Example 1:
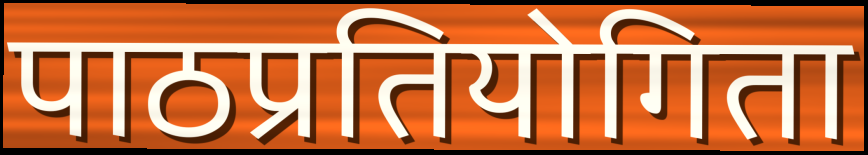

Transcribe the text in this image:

पाठप्रतियोगिता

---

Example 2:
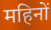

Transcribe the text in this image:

महिनों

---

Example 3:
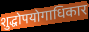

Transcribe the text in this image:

शुद्धोपयोगाधिकार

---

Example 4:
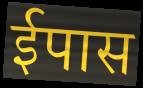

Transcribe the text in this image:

ईपास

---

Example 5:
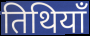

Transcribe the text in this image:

तिथियाँ